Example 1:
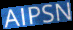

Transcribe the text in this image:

AIPSN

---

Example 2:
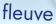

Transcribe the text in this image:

fleuve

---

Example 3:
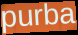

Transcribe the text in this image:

purba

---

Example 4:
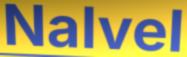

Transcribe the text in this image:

Nalvel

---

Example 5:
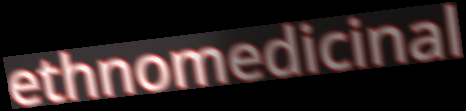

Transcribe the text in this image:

ethnomedicinal